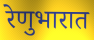
रेणुभारात